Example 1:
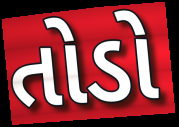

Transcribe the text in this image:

તોડો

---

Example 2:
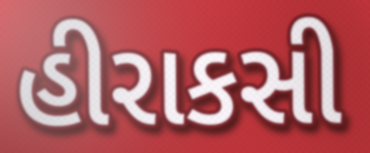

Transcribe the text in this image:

હીરાકસી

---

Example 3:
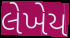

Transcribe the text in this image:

લેખેય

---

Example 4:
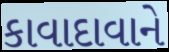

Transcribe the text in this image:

કાવાદાવાને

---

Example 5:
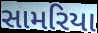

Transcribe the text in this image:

સામરિયા